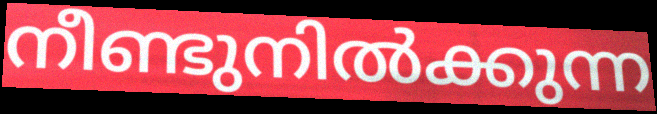
നീണ്ടുനിൽക്കുന്ന